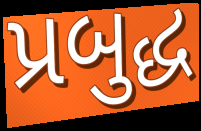
પ્રબુદ્ધ